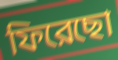
ফিরেছো